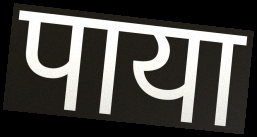
पाया